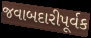
જવાબદારીપૂર્વક